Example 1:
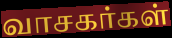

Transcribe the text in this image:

வாசகர்கள்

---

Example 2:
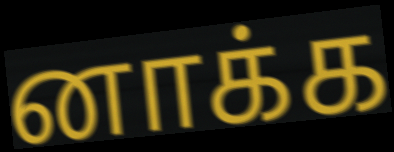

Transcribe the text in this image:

னாக்க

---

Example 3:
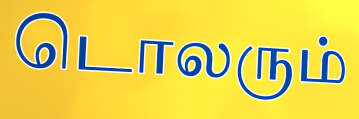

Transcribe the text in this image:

டொலரும்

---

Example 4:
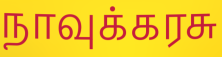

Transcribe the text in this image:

நாவுக்கரசு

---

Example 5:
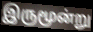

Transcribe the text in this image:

இருமூன்று